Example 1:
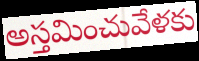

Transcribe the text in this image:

అస్తమించువేళకు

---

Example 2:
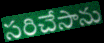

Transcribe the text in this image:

సరిచేసాను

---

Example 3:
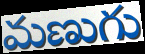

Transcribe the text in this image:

మణుగు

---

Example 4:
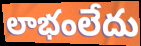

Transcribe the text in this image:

లాభంలేదు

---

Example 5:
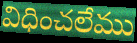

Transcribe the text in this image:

విధించలేము